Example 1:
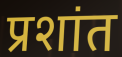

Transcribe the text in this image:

प्रशांत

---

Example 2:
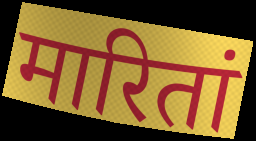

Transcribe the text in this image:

मारितां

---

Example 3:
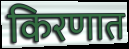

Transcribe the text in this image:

किरणात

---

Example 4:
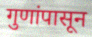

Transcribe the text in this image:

गुणांपासून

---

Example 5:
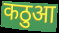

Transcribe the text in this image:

कठुआ